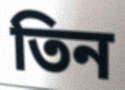
তিন